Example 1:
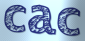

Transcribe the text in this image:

cac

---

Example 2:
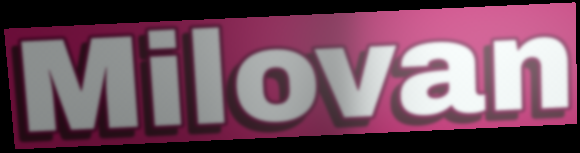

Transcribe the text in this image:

Milovan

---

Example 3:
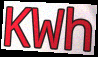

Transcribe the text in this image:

KWh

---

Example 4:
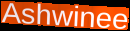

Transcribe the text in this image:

Ashwinee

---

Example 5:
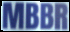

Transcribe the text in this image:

MBBR